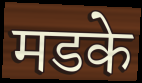
मडके